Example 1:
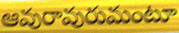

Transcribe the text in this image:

ఆవురావురుమంటూ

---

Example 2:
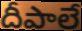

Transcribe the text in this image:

దీపాలే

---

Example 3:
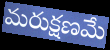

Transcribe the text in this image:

మరుక్షణమే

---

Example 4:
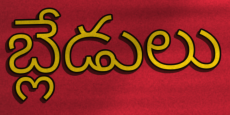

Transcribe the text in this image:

బ్లేడులు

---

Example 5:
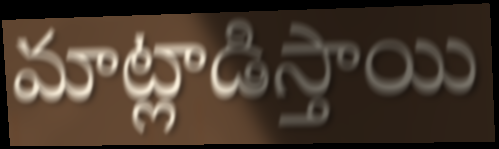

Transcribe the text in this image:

మాట్లాడిస్తాయి